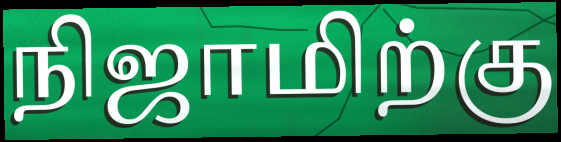
நிஜாமிற்கு